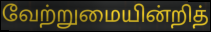
வேற்றுமையின்றித்